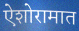
ऐशोरामात